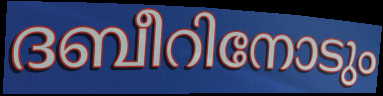
ദബീറിനോടും